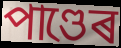
পাণ্ডেৰ